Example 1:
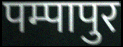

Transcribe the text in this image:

पम्पापुर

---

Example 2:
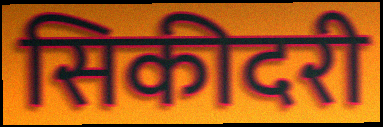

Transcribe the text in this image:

सिकीदरी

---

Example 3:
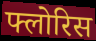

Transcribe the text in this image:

फ्लोरिस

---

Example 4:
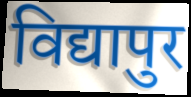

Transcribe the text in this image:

विद्यापुर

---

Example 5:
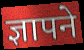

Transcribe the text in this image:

ज्ञापने